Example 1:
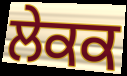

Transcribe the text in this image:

ਲੇਕਕ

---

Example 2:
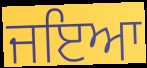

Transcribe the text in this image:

ਜਇਆ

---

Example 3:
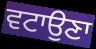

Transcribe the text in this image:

ਵਟਾਉਣਾ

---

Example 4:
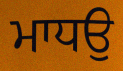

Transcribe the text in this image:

ਮਾਧਉ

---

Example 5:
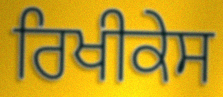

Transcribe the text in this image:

ਰਿਖੀਕੇਸ